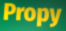
Propy